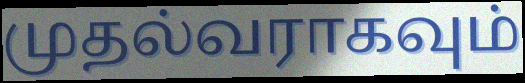
முதல்வராகவும்